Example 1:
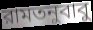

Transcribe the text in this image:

রামতনুবাবু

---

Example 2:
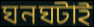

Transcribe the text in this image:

ঘনঘটাই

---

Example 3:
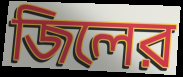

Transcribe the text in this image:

জিলের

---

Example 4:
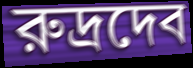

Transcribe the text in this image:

রুদ্রদেব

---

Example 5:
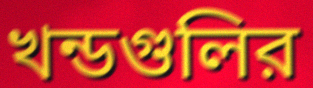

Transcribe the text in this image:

খন্ডগুলির